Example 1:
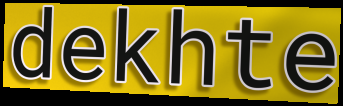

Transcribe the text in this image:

dekhte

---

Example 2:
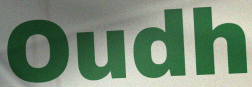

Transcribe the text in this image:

Oudh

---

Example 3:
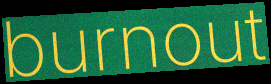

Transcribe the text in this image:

burnout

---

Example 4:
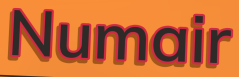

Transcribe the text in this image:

Numair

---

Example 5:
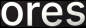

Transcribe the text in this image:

ores